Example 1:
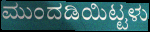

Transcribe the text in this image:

ಮುಂದಡಿಯಿಟ್ಟಳು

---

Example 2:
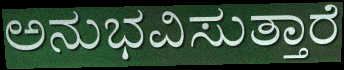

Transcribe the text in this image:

ಅನುಭವಿಸುತ್ತಾರೆ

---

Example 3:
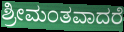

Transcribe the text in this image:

ಶ್ರೀಮಂತವಾದರೆ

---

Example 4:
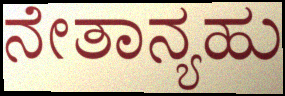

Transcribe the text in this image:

ನೇತಾನ್ಯಹು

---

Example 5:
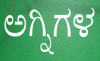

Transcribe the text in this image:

ಅಗ್ನಿಗಳ